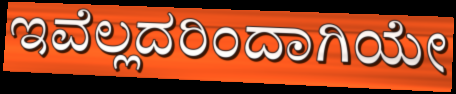
ಇವೆಲ್ಲದರಿಂದಾಗಿಯೇ